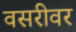
वसरीवर